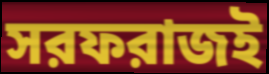
সরফরাজই